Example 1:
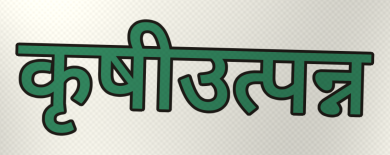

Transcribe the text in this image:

कृषीउत्पन्न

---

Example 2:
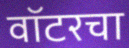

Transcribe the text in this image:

वॉटरचा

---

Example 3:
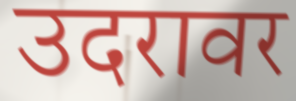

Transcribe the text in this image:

उदरावर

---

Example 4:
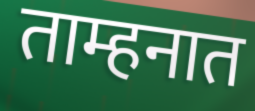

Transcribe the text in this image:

ताम्हनात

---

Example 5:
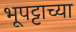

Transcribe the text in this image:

भूपट्टाच्या